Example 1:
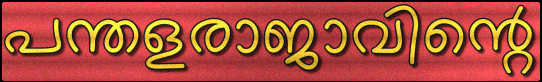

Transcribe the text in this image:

പന്തളരാജാവിന്റെ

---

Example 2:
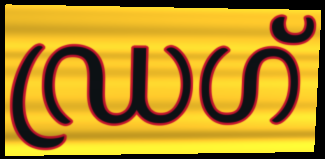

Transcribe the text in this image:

ഡ്രഗ്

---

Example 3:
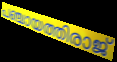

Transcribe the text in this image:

പഞ്ചായത്തിരാജ്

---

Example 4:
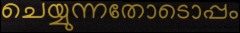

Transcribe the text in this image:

ചെയ്യുന്നതോടൊപ്പം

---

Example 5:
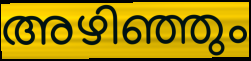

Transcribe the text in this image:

അഴിഞ്ഞും